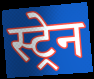
स्ट्रेन